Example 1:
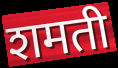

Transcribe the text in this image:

शमती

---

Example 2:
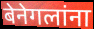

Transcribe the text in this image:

बेनेगलांना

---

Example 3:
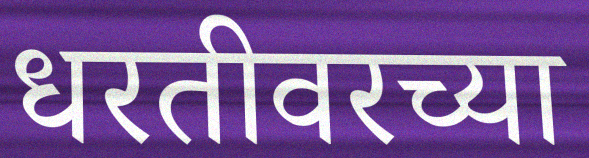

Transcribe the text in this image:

धरतीवरच्या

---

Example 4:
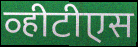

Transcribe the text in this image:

व्हीटीएस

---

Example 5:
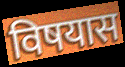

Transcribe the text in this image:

विषयास